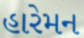
હારેમન